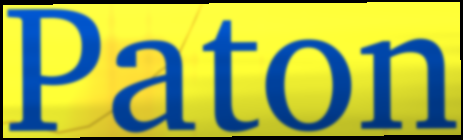
Paton